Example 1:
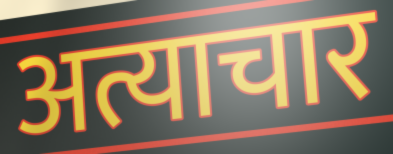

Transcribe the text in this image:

अत्याचार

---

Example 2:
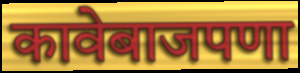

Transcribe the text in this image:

कावेबाजपणा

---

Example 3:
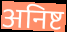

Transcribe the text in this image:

अनिष्ट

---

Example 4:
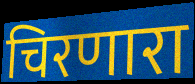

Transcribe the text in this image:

चिरणारा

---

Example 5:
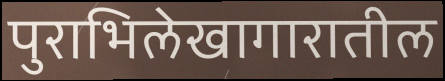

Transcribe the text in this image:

पुराभिलेखागारातील